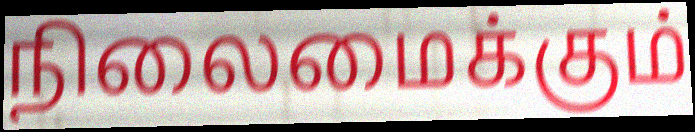
நிலைமைக்கும்